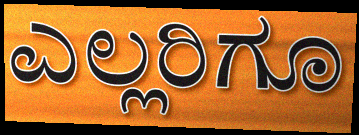
ಎಲ್ಲರಿಗೂ